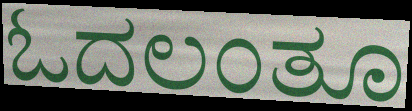
ಓದಲಂತೂ